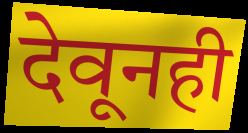
देवूनही